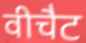
वीचैट